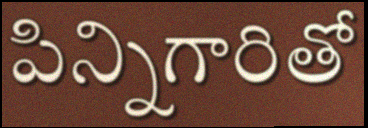
పిన్నిగారితో